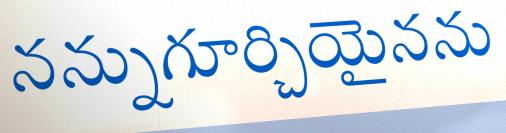
నన్నుగూర్చియైనను